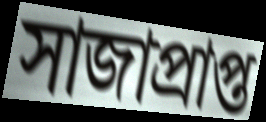
সাজাপ্রাপ্ত